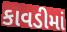
કાવડીમાં